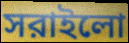
সরাইলো